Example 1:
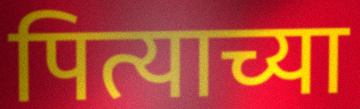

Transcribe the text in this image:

पित्याच्या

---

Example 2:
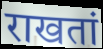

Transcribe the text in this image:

राखतां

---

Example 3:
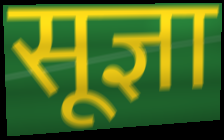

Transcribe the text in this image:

सूज्ञा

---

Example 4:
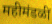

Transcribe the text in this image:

महीमंडळीं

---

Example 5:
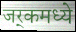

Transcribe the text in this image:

जर्कमध्ये